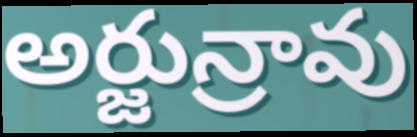
అర్జున్రావు